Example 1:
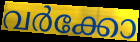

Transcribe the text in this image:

വർക്കോ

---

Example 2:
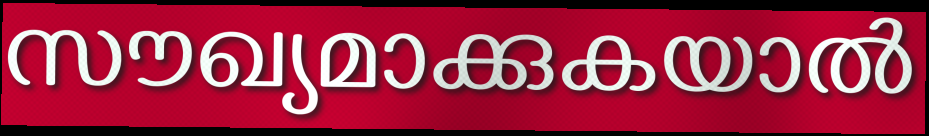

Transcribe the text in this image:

സൗഖ്യമാക്കുകയാൽ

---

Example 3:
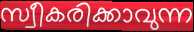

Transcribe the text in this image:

സ്വീകരിക്കാവുന്ന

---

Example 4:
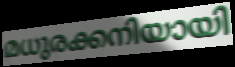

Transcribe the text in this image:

മധുരക്കനിയായി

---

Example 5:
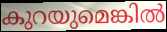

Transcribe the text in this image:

കുറയുമെങ്കിൽ